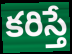
కరిస్తే